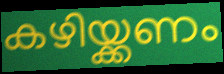
കഴിയ്ക്കണം